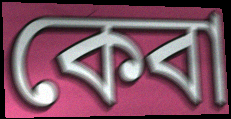
কেবা